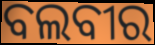
ବଲବୀର